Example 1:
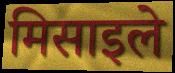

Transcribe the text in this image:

मिसाइले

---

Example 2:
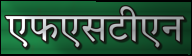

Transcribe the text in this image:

एफएसटीएन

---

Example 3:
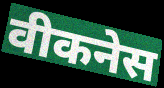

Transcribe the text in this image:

वीकनेस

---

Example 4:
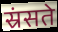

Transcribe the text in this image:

स्रंसते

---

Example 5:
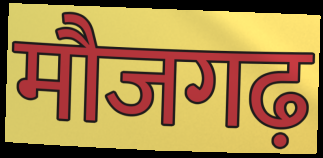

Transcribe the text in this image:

मौजगढ़